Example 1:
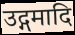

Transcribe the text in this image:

उद्गमादि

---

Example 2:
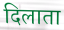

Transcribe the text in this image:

दिलाता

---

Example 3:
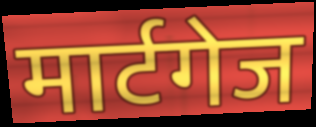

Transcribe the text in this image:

मार्टगेज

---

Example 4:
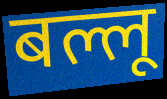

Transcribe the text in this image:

बल्लू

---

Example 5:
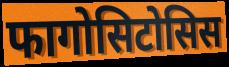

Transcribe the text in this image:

फागोसिटोसिस